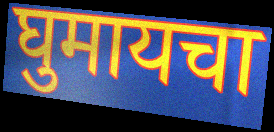
घुमायचा